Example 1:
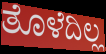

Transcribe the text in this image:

ತೊಳೆದಿಲ್ಲ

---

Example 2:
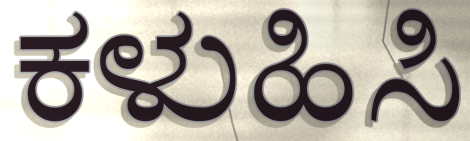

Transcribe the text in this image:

ಕಳುಹಿಸಿ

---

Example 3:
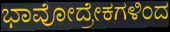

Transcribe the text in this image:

ಭಾವೋದ್ರೇಕಗಳಿಂದ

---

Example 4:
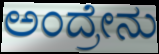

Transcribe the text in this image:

ಅಂದ್ರೇನು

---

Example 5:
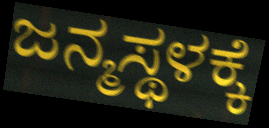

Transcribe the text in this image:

ಜನ್ಮಸ್ಥಳಕ್ಕೆ